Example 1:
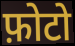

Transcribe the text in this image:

फ़ोटो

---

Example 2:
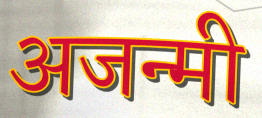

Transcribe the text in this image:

अजन्मी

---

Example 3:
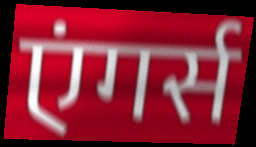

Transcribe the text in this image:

एंगर्स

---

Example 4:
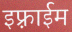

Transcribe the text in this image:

इफ़्राईम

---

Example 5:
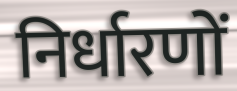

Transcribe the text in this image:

निर्धारणों